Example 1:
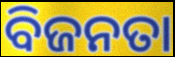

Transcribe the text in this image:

ବିଜନତା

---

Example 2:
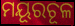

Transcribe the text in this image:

ମୟୂରଚୂଳ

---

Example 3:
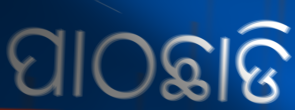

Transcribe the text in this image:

ପାଠଛାଡି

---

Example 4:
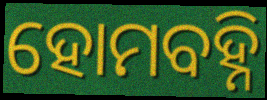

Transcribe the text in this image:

ହୋମବହ୍ନି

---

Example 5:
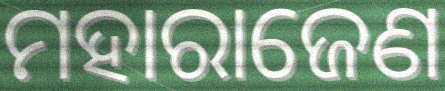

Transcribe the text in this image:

ମହାରାଜେଣ